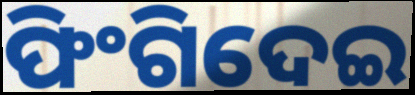
ଫିଂଗିଦେଇ